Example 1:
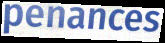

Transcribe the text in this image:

penances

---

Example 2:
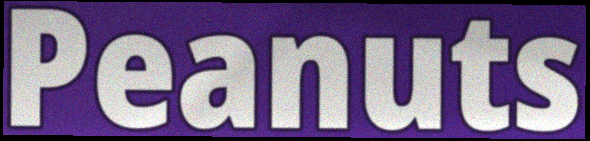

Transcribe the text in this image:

Peanuts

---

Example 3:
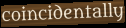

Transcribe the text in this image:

coincidentally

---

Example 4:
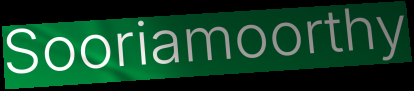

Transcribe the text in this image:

Sooriamoorthy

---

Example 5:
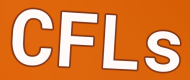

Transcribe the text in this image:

CFLs